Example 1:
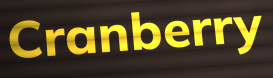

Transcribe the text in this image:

Cranberry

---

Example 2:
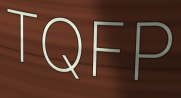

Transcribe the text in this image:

TQFP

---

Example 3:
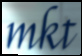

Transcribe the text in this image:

mkt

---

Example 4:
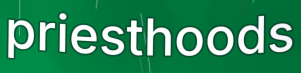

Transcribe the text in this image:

priesthoods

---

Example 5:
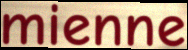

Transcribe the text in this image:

mienne